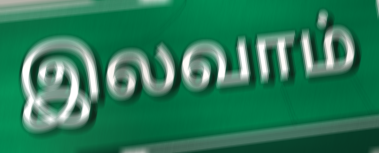
இலவாம்